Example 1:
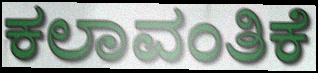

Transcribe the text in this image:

ಕಲಾವಂತಿಕೆ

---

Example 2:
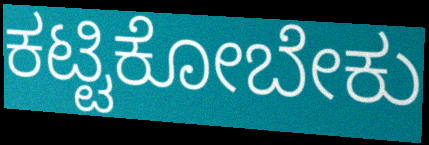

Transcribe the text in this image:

ಕಟ್ಟಿಕೋಬೇಕು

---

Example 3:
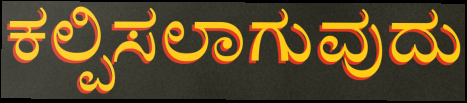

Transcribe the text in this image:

ಕಲ್ಪಿಸಲಾಗುವುದು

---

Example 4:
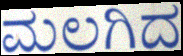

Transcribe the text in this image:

ಮಲಗಿದ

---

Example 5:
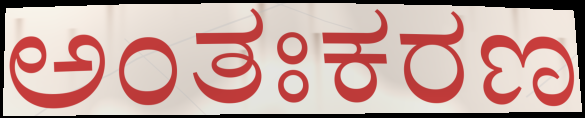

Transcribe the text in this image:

ಅಂತಃಕರಣ